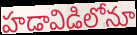
హడావిడిలోనూ